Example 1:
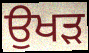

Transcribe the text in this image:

ਉਖੜ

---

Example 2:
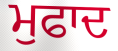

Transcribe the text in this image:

ਮੁਫਾਦ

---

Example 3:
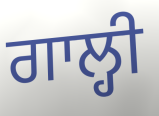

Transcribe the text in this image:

ਗਾਲ੍ਹ੍ਹੀ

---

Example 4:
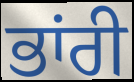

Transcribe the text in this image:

ਭਾਂਰੀ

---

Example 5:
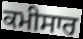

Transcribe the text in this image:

ਕਮੀਸਾਰ